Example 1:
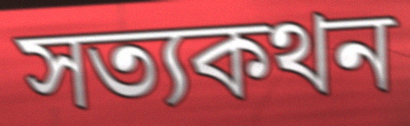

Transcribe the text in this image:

সত্যকথন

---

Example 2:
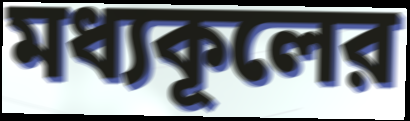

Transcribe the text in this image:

মধ্যকূলের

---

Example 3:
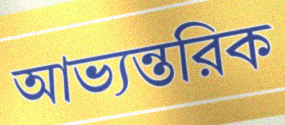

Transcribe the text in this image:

আভ্যন্তরিক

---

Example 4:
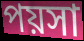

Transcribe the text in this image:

পয়সা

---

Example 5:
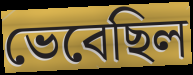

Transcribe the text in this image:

ভেবেছিল